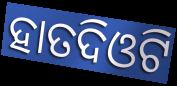
ହାତଦିଓଟି